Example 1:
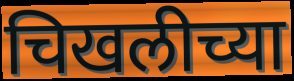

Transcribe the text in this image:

चिखलीच्या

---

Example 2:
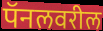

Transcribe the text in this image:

पॅनलवरील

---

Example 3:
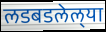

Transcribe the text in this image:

लडबडलेल्या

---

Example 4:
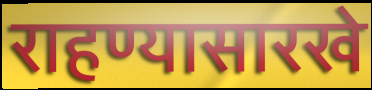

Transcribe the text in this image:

राहण्यासारखे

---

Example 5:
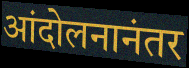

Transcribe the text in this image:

आंदोलनानंतर